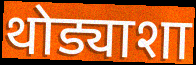
थोड्याशा